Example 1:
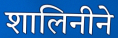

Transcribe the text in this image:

शालिनीने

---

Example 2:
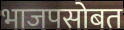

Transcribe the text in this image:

भाजपसोबत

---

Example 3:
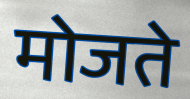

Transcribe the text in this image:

मोजते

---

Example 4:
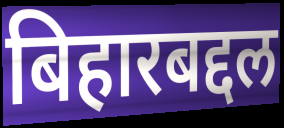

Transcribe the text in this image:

बिहारबद्दल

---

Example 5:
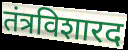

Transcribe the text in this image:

तंत्रविशारद